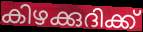
കിഴക്കുദിക്ക്